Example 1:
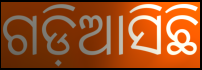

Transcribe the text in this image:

ଗଡ଼ିଆସିଛି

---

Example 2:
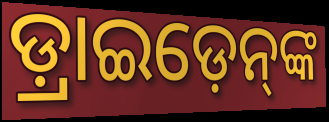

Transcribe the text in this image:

ଡ଼୍ରାଇଡ଼େନ୍‌ଙ୍କ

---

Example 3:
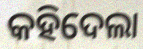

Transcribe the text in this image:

କହିଦେଲା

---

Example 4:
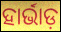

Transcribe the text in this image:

ହାର୍ଭାଡ଼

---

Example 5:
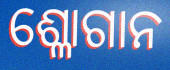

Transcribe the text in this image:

ଶ୍ଳୋଗାନ